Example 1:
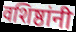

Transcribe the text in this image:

वशिष्ठांनी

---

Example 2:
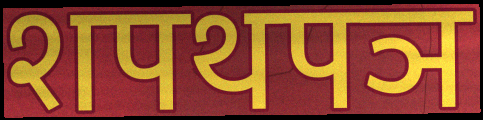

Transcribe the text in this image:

शपथपञ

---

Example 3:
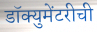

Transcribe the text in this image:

डॉक्युमेंटरीची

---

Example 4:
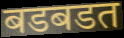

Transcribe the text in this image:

बडबडत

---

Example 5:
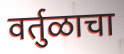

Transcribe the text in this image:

वर्तुळाचा